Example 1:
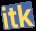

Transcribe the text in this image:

itk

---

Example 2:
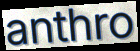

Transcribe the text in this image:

anthro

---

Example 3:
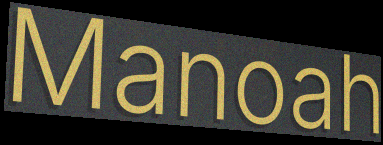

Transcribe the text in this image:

Manoah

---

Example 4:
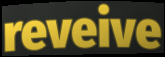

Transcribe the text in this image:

reveive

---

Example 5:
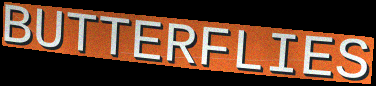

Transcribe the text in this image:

BUTTERFLIES